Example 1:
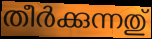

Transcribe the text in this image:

തീർക്കുന്നതു്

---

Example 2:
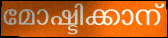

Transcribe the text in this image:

മോഷ്ടിക്കാന്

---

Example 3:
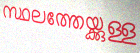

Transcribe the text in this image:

സ്ഥലത്തേയ്ക്കുള്ള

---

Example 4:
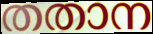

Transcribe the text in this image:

തതാന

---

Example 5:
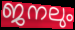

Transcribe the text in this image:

ജനലും